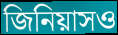
জিনিয়াসও